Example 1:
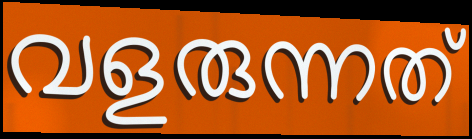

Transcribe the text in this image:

വളരുന്നത്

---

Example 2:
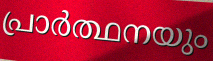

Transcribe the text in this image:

പ്രാർത്ഥനയും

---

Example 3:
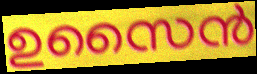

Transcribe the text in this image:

ഉസൈൻ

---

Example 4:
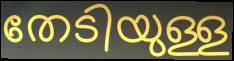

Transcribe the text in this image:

തേടിയുള്ള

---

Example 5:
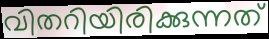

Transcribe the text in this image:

വിതറിയിരിക്കുന്നത്